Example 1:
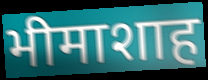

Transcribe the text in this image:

भीमाशाह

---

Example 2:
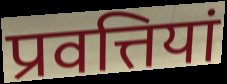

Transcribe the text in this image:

प्रवत्तियां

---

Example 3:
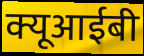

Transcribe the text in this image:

क्यूआईबी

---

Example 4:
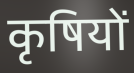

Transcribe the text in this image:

कृषियों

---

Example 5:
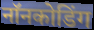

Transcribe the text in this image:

नॉनकोडिंग